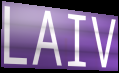
LAIV